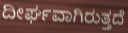
ದೀರ್ಘವಾಗಿರುತ್ತದೆ